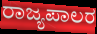
ರಾಜ್ಯಪಾಲರ